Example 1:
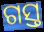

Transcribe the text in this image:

ଗସ୍ତ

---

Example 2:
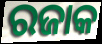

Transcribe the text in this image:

ରଜାକ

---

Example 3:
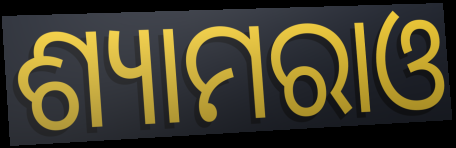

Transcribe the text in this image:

ଶ୍ୟାମରାଓ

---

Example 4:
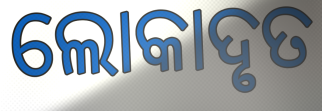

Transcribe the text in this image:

ଲୋକାଦୃତ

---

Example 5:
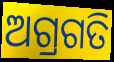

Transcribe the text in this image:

ଅଗ୍ରଗତି